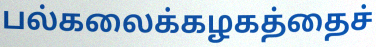
பல்கலைக்கழகத்தைச்